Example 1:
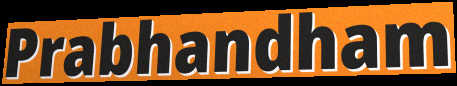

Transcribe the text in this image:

Prabhandham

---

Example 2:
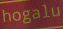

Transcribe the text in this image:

hogalu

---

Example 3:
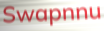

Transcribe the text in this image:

Swapnnu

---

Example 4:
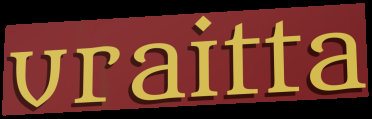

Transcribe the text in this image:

uraitta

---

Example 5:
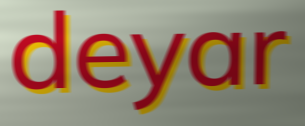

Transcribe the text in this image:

deyar